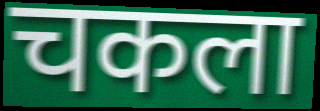
चकला